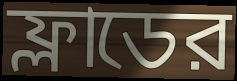
ফ্লাডের